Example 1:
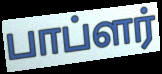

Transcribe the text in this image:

பாப்ளர்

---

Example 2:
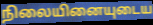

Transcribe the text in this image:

நிலையினையுடைய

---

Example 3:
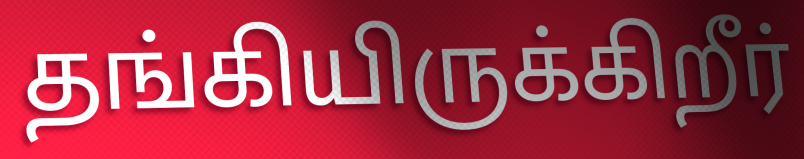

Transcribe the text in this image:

தங்கியிருக்கிறீர்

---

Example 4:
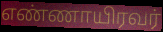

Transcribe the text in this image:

எண்ணாயிரவர்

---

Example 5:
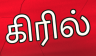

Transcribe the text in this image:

கிரில்